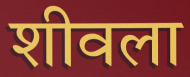
शीवला